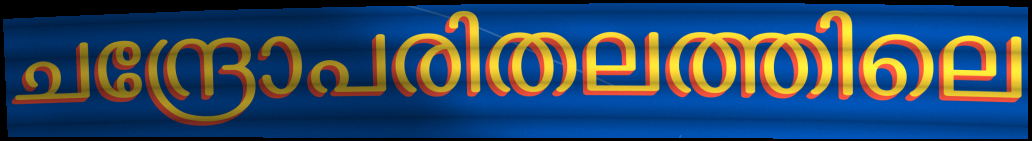
ചന്ദ്രോപരിതലത്തിലെ